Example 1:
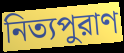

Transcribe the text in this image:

নিত্যপুরাণ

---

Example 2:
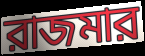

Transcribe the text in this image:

রাজমার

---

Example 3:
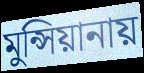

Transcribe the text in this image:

মুন্সিয়ানায়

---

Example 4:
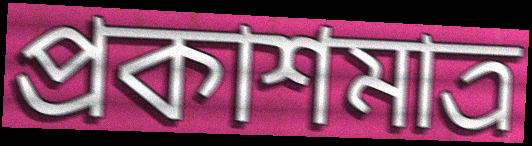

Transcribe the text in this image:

প্রকাশমাত্র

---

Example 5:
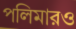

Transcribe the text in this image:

পলিমারও